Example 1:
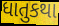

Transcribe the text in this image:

ધાતુકથા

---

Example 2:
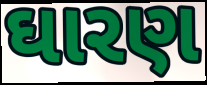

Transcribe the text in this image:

ઘારણ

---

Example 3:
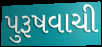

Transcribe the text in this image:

પુરૂષવાચી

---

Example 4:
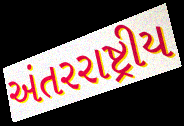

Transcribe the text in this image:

અંતરરાષ્ટ્રીય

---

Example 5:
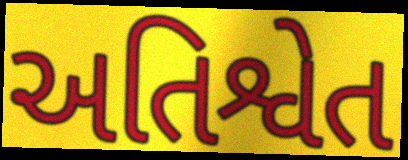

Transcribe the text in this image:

અતિશ્વેત